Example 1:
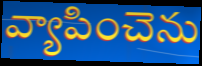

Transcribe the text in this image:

వ్యాపించెను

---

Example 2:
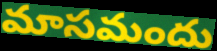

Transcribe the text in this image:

మాసమందు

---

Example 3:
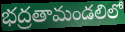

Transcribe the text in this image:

భద్రతామండలిలో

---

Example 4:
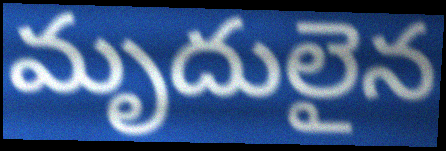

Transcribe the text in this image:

మృదులైన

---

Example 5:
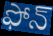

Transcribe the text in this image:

ఫోన్